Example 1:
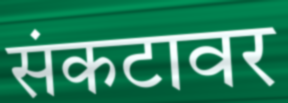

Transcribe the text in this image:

संकटावर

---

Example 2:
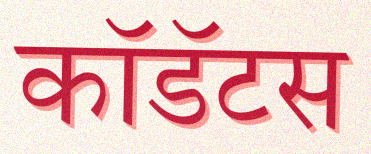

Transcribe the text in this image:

कॉडॅटस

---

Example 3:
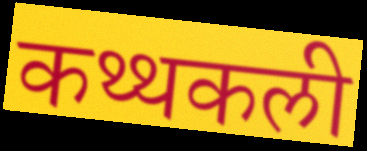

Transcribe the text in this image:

कथ्थकली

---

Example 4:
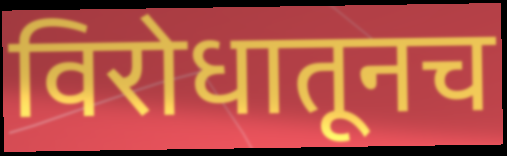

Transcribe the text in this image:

विरोधातूनच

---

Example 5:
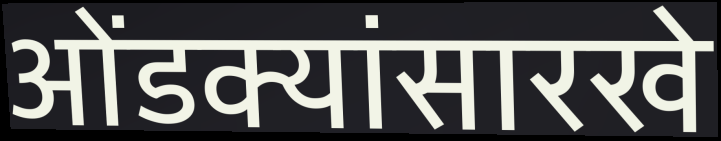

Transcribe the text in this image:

ओंडक्यांसारखे